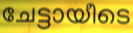
ചേട്ടായീടെ